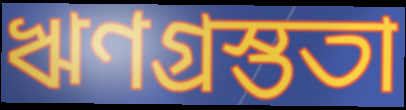
ঋণগ্রস্ততা